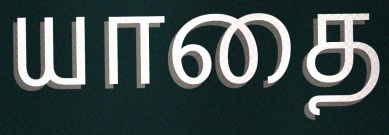
யாதை